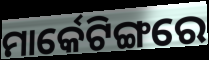
ମାର୍କେଟିଙ୍ଗରେ